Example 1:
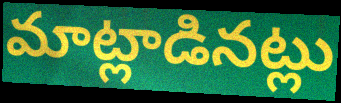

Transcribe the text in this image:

మాట్లాడినట్లు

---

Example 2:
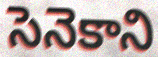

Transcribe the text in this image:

సెనెకాని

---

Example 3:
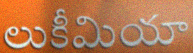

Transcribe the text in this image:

లుకీమియా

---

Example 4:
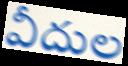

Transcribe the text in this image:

వీదుల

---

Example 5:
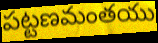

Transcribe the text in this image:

పట్టణమంతయు